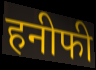
हनीफी